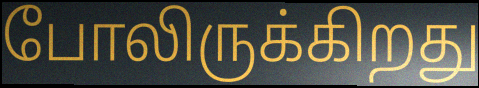
போலிருக்கிறது